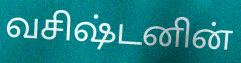
வசிஷ்டனின்